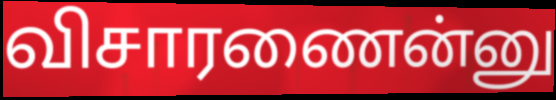
விசாரணைன்னு